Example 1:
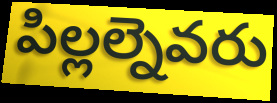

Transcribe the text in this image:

పిల్లల్నెవరు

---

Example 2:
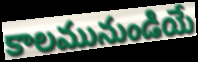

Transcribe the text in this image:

కాలమునుండియే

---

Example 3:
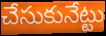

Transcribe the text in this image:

చేసుకునేట్టు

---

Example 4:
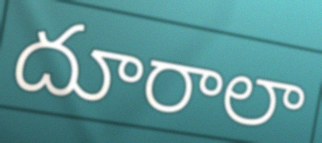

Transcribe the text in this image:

దూరాలా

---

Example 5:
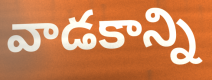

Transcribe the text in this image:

వాడకాన్ని